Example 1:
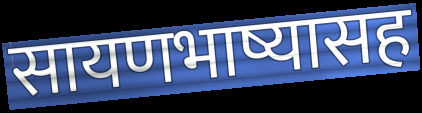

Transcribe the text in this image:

सायणभाष्यासह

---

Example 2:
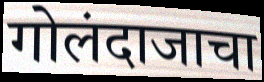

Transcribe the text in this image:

गोलंदाजाचा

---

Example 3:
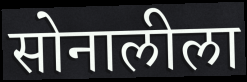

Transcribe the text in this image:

सोनालीला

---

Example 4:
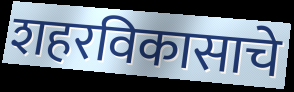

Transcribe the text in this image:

शहरविकासाचे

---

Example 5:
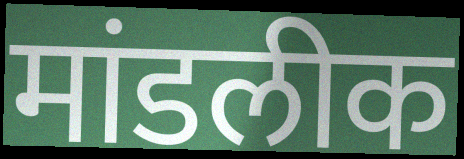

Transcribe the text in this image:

मांडलीक